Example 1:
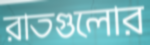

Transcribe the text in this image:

রাতগুলোর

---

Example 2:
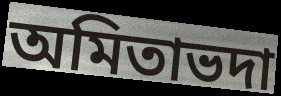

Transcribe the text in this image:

অমিতাভদা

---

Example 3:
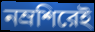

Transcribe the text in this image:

নম্রশিরেই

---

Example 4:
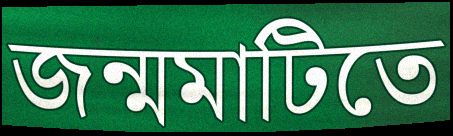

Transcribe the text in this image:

জন্মমাটিতে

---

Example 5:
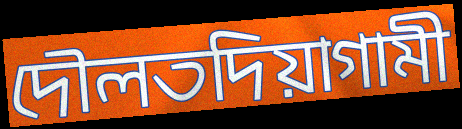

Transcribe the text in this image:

দৌলতদিয়াগামী